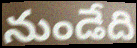
నుండేది